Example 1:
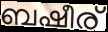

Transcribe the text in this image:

ബഷീര്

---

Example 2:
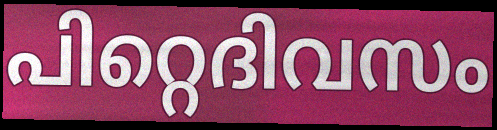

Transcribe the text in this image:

പിറ്റെദിവസം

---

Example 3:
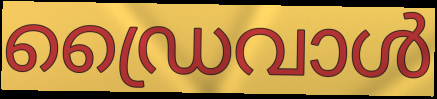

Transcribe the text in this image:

ഡ്രൈവാൾ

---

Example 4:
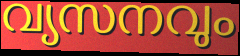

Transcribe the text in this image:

വ്യസനവും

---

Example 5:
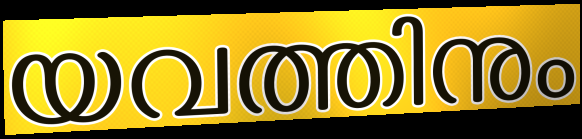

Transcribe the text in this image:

യവത്തിനും